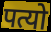
पत्यो